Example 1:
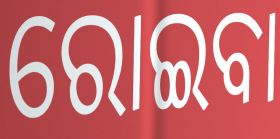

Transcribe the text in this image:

ରୋଇବା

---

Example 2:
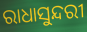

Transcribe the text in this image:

ରାଧାସୁନ୍ଦରୀ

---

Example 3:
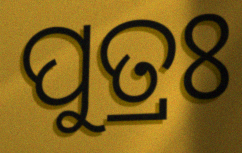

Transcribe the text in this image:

ପୁତ୍ରଃ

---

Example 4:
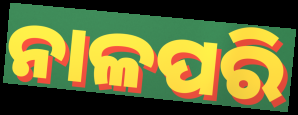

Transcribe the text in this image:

ନାଳପରି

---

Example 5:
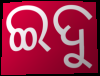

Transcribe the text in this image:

ଇଦୁ